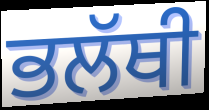
ਭਲੱਥੀ